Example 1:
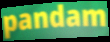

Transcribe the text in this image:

pandam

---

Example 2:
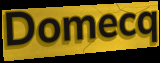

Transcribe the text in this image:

Domecq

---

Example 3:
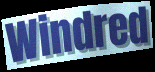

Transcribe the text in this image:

Windred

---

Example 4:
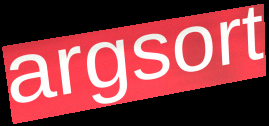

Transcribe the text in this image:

argsort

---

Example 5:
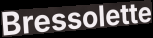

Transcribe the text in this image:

Bressolette